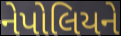
નેપોલિયને